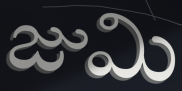
జుమి